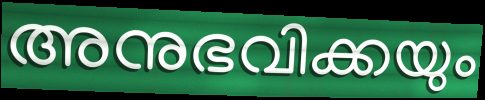
അനുഭവിക്കയും